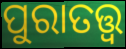
ପୁରାତତ୍ତ୍ୱ